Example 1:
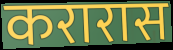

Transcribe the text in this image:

करारास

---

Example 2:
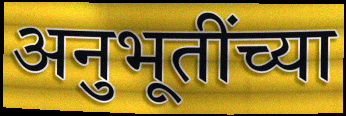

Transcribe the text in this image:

अनुभूतींच्या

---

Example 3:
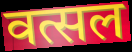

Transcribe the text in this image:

वत्सल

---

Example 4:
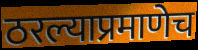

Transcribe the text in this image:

ठरल्याप्रमाणेच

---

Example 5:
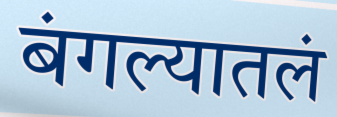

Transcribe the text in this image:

बंगल्यातलं